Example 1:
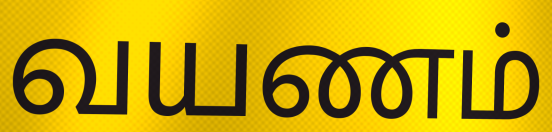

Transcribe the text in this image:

வயணம்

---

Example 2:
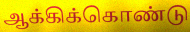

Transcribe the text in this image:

ஆக்கிக்கொண்டு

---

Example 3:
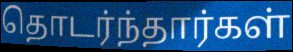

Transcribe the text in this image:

தொடர்ந்தார்கள்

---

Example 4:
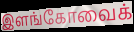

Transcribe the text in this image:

இளங்கோவைக்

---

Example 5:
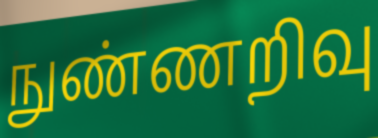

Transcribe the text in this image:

நுண்ணறிவு